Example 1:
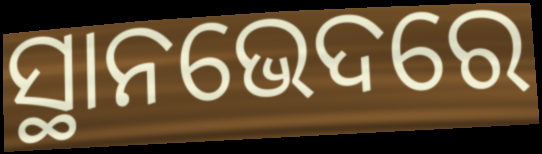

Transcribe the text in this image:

ସ୍ଥାନଭେଦରେ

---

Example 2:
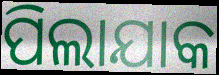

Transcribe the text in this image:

ପିଲାଯାକ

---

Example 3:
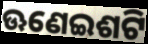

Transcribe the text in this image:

ଊଣେଇଶଟି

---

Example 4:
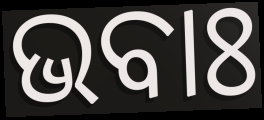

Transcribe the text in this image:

ଭବାଃ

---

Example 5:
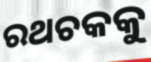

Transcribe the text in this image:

ରଥଚକକୁ